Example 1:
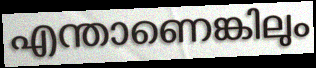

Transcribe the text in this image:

എന്താണെങ്കിലും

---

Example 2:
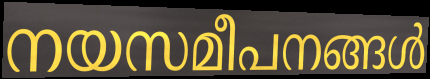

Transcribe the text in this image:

നയസമീപനങ്ങൾ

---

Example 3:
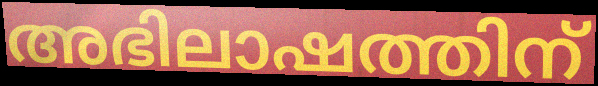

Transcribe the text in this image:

അഭിലാഷത്തിന്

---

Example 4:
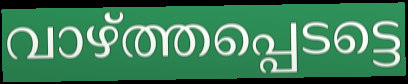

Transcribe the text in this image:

വാഴ്ത്തപ്പെടട്ടെ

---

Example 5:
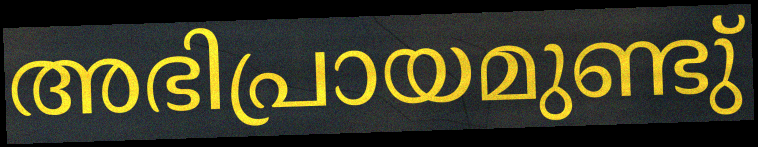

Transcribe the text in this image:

അഭിപ്രായമുണ്ടു്